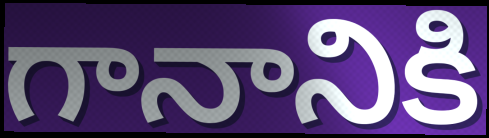
గానానికి